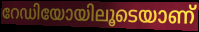
റേഡിയോയിലൂടെയാണ്